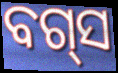
ବଗ୍‌ସ